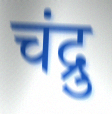
चंद्रु